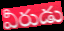
వీరుడు